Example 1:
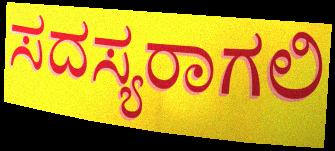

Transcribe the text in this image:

ಸದಸ್ಯರಾಗಲಿ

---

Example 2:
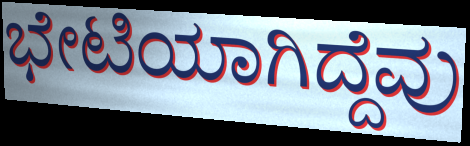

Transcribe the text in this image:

ಭೇಟಿಯಾಗಿದ್ದೆವು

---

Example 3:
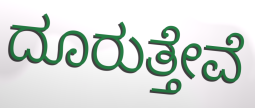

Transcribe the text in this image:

ದೂರುತ್ತೇವೆ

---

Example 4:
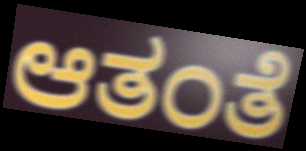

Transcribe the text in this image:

ಆತಂತೆ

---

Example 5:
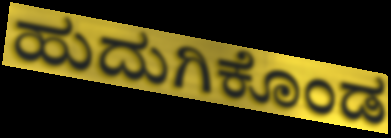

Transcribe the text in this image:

ಹುದುಗಿಕೊಂಡ